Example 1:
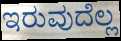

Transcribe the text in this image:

ಇರುವುದೆಲ್ಲ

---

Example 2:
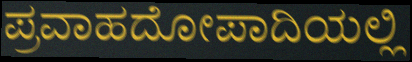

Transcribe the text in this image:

ಪ್ರವಾಹದೋಪಾದಿಯಲ್ಲಿ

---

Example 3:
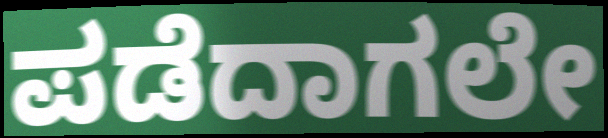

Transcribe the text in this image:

ಪಡೆದಾಗಲೇ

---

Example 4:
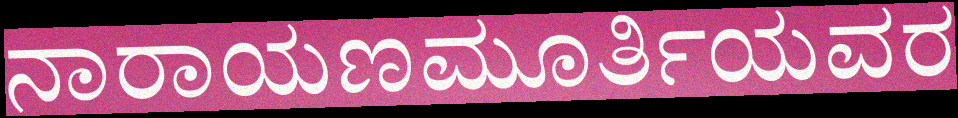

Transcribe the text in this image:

ನಾರಾಯಣಮೂರ್ತಿಯವರ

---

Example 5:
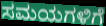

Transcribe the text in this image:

ಸಮಯಗಳಿಗೆ